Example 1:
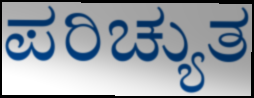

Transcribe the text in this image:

ಪರಿಚ್ಯುತ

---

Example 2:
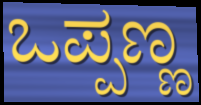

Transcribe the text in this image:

ಒಪ್ಪಣ್ಣ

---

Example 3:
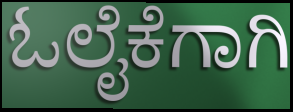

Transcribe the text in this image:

ಓಲೈಕೆಗಾಗಿ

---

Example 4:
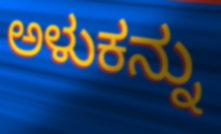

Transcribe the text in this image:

ಅಳುಕನ್ನು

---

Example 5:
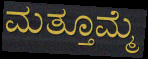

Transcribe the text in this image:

ಮತ್ತೂಮ್ಮೆ